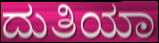
ದುತಿಯಾ